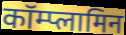
कॉम्प्लामिन